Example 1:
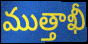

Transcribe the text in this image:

ముత్తాఖీ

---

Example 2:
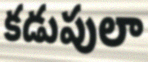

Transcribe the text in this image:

కడుపులా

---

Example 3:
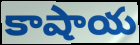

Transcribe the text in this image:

కాషాయ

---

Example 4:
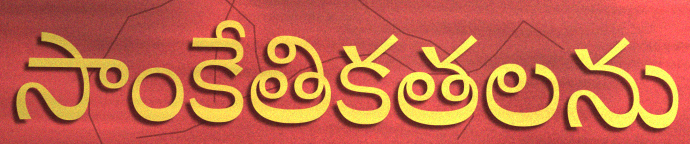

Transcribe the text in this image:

సాంకేతికతలను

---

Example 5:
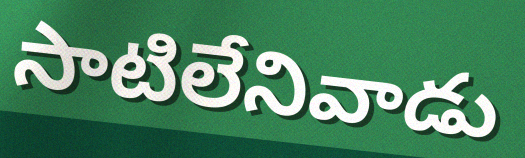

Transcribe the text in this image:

సాటిలేనివాడు